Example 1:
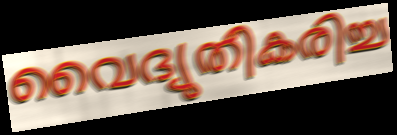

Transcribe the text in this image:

വൈദ്യുതീകരിച്ച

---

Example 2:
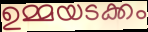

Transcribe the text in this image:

ഉമ്മയടക്കം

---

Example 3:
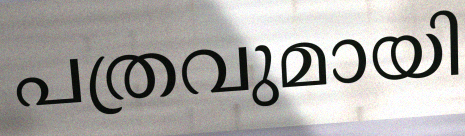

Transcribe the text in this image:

പത്രവുമായി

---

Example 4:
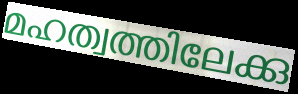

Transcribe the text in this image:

മഹത്വത്തിലേക്കു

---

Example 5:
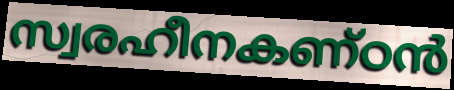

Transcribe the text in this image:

സ്വരഹീനകണ്ഠൻ